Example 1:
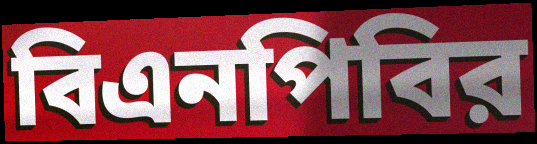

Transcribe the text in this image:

বিএনপিবির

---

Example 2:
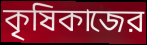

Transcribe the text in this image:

কৃষিকাজের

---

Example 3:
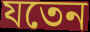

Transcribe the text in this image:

যতেন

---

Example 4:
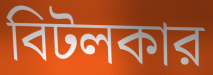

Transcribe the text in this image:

বিটলকার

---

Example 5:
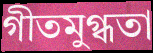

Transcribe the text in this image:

গীতমুগ্ধতা